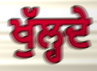
ਖੁੱਲ੍ਹਦੇ